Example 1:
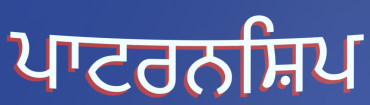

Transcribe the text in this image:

ਪਾਟਰਨਸ਼ਿਪ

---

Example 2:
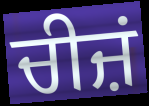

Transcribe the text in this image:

ਚੀਜ਼ਂ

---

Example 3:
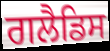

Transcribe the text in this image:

ਗਲੈਡਿਸ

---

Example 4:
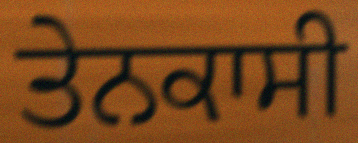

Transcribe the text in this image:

ਤੇਨਕਾਸੀ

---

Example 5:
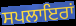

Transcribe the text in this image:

ਸਪਲਾਇਰਾਂ